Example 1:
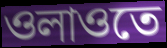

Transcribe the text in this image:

ওলাওতে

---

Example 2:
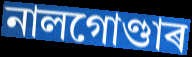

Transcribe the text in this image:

নালগোণ্ডাৰ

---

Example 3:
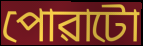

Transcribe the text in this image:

পোৱাটো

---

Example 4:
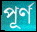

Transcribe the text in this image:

পূৰ্ণ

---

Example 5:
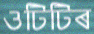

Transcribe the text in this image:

ওটিটিৰ